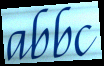
abbc